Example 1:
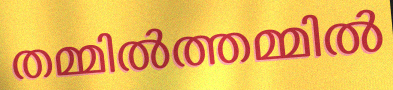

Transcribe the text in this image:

തമ്മിൽത്തമ്മിൽ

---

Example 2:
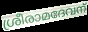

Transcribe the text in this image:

ശ്രീരാമദേവന്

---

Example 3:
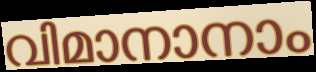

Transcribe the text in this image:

വിമാനാനാം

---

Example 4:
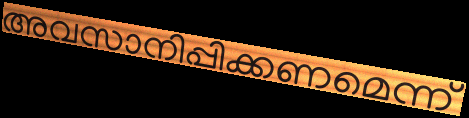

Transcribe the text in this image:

അവസാനിപ്പിക്കണമെന്ന്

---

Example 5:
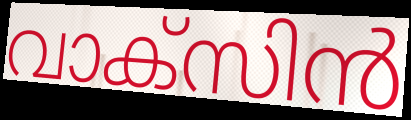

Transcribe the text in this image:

വാക്സിൻ